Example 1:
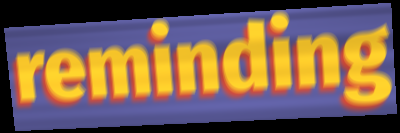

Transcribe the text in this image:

reminding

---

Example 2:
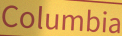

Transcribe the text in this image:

Columbia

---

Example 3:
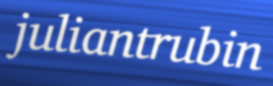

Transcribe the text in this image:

juliantrubin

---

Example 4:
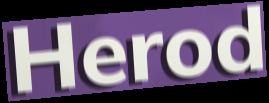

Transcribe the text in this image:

Herod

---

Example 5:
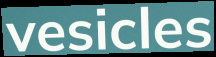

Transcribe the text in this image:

vesicles